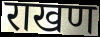
राखण